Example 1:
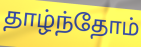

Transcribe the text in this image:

தாழ்ந்தோம்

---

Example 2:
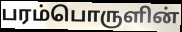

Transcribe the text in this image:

பரம்பொருளின்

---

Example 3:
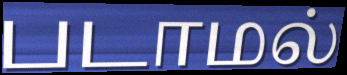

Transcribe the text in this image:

படாமல்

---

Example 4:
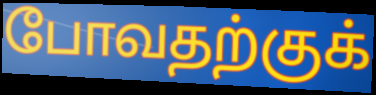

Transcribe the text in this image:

போவதற்குக்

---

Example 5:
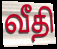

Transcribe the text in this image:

வீதி